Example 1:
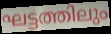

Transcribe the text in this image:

ഘട്ടത്തിലും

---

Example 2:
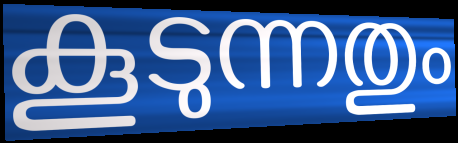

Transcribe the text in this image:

കൂടുന്നതും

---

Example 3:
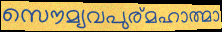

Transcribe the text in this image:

സൌമ്യവപുര്മഹാത്മാ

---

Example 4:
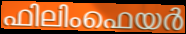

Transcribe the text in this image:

ഫിലിംഫെയർ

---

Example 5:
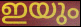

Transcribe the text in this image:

ഇയും